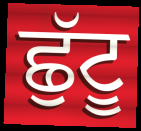
ਛੁੱਟੂ